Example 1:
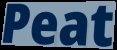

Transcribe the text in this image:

Peat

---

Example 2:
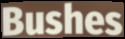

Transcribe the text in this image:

Bushes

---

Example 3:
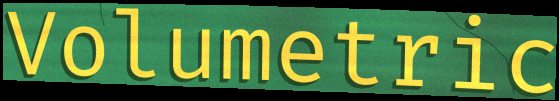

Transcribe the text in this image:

Volumetric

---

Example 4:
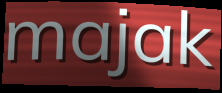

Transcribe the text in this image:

majak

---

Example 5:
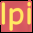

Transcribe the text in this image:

lpi